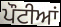
ਪੌਟੀਆਂ